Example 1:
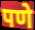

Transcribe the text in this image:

पणे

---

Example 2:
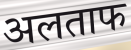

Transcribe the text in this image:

अलताफ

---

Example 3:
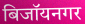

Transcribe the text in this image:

बिजॉयनगर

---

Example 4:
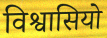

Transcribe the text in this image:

विश्वासियो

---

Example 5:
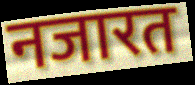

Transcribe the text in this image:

नजारत